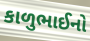
કાળુભાઈનો